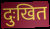
दुःखित